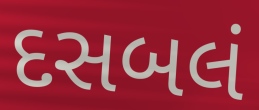
દસબલં